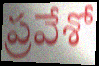
ప్రవేశో